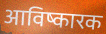
आविष्कारक